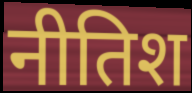
नीतिश